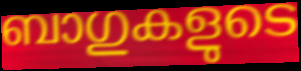
ബാഗുകളുടെ